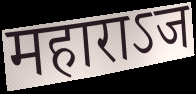
महाराऽज